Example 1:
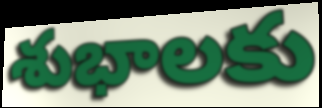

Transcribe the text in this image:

శుభాలకు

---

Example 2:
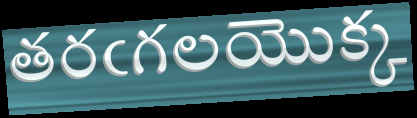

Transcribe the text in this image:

తరఁగలయొక్క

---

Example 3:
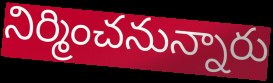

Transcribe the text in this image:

నిర్మించనున్నారు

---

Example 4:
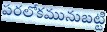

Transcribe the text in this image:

పరలోకమునుబట్టి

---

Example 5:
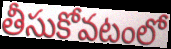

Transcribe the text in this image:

తీసుకోవటంలో